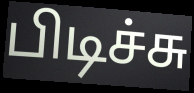
பிடிச்சு